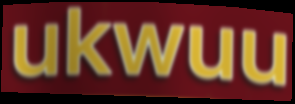
ukwuu